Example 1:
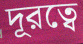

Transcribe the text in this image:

দূরত্বে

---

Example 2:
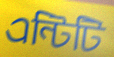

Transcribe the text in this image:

এন্টিটি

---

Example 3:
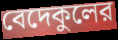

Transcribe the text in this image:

বেদেকুলের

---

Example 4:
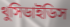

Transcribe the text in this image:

থুসিডাইডিস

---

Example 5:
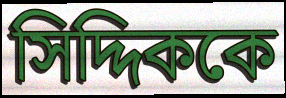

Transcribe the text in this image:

সিদ্দিককে